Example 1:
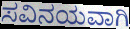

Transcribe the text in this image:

ಸವಿನಯವಾಗಿ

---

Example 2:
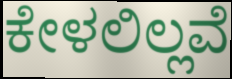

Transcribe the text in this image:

ಕೇಳಲಿಲ್ಲವೆ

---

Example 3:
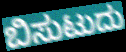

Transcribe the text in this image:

ಬಿಸುಟುದು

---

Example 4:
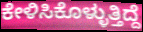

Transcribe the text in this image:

ಕೇಳಿಸಿಕೊಳ್ಳುತ್ತಿದ್ದೆ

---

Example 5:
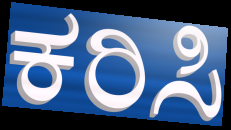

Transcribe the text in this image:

ಕರಿಸಿ